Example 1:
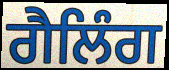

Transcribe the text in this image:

ਗੈਲਿੰਗ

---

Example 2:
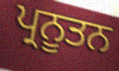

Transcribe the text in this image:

ਪ੍ਰਨੂਤਨ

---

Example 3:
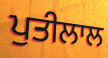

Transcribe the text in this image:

ਪੁਤੀਲਾਲ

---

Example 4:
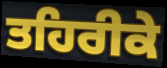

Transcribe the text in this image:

ਤਹਿਰੀਕੇ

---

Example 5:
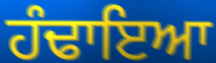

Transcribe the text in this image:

ਹੰਢਾਇਆ